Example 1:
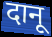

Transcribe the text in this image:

दानू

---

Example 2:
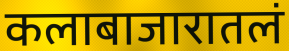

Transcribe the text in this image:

कलाबाजारातलं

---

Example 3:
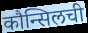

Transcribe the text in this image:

कौन्सिलची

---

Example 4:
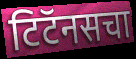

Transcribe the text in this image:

टिटॅनसचा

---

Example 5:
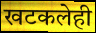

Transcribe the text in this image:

खटकलेही